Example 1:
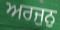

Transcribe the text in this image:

ਅਰਜੁਨੁ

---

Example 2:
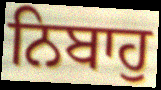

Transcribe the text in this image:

ਨਿਬਾਹੁ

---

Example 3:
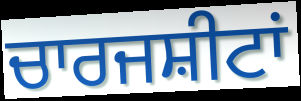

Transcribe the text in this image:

ਚਾਰਜਸ਼ੀਟਾਂ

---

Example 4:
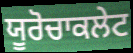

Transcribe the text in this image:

ਯੂਰੋਚਾਕਲੇਟ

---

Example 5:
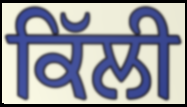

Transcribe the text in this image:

ਕਿੱਲੀ